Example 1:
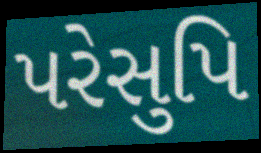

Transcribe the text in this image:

પરેસુપિ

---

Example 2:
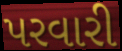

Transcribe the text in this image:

પરવારી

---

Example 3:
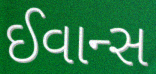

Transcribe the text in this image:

ઈવાન્સ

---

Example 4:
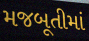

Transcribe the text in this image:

મજબૂતીમાં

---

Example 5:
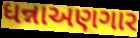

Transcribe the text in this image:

ધન્નાઅણગાર